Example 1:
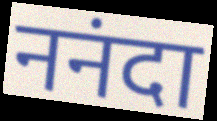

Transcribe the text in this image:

ननंदा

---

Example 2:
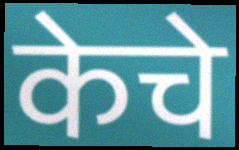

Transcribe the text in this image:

केचे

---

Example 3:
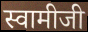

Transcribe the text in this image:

स्वामीजी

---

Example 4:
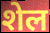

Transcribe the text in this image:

शेल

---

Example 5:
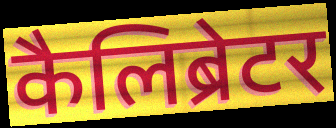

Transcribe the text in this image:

कैलिब्रेटर